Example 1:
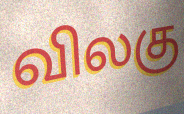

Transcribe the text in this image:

விலகு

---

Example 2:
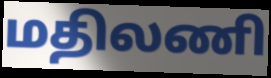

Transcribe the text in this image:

மதிலணி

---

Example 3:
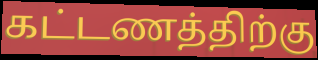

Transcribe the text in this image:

கட்டணத்திற்கு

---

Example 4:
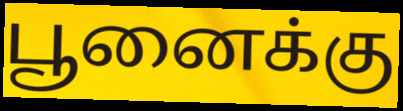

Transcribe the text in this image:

பூனைக்கு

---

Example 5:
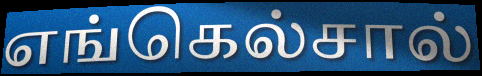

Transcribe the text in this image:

எங்கெல்சால்